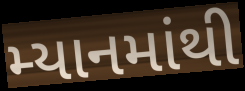
મ્યાનમાંથી